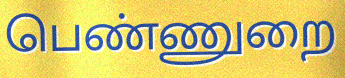
பெண்ணுறை